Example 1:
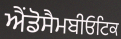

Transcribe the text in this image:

ਐਂਡੋਸੈਮਬੀਓਟਿਕ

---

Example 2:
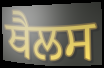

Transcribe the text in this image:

ਥੈਲਸ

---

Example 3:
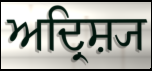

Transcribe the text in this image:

ਅਦ੍ਰਿਸ਼੍ਯ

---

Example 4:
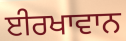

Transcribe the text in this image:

ਈਰਖਾਵਾਨ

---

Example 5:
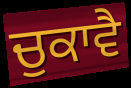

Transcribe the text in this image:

ਚੁਕਾਵੈ